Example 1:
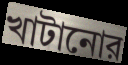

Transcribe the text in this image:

খাটানোর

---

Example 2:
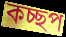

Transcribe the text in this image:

কচ্ছপ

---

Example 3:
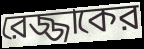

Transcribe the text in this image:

রেজ্জাকের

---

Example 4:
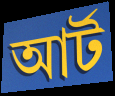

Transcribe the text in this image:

আর্ট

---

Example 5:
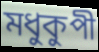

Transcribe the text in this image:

মধুকুপী